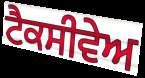
ਟੈਕਸੀਵੇਅ